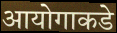
आयोगाकडे